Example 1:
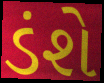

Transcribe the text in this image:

ડંશે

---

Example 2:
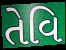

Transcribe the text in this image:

તેવિ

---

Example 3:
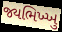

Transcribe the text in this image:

જ્યભિખ્ખુ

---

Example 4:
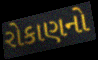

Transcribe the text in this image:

રોકાણનો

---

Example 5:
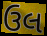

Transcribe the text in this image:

ઉલ